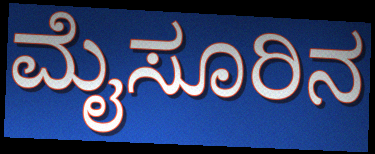
ಮೈಸೂರಿನ